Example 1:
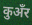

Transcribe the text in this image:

कुअँर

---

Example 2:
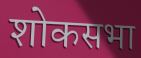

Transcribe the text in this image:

शोकसभा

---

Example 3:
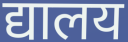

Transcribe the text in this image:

द्यालय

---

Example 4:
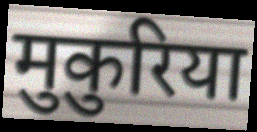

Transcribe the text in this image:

मुकुरिया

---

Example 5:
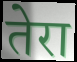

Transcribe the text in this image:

तेरा